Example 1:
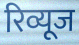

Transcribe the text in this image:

रिव्‍यूज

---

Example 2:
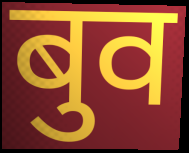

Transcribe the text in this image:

बुव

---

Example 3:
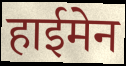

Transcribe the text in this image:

हाईमेन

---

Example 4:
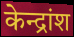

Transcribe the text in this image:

केन्द्रांश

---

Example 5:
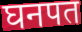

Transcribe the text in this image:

घनपत